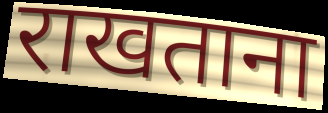
राखताना